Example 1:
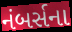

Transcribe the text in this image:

નંબર્સના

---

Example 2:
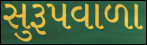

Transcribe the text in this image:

સુરૂપવાળા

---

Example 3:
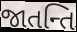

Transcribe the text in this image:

જાતન્તિ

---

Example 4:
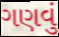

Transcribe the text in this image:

ગણવું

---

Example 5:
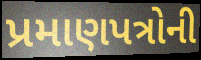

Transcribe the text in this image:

પ્રમાણપત્રોની